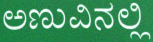
ಅಣುವಿನಲ್ಲಿ